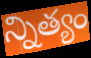
న్నిత్యం